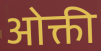
ओक्ती